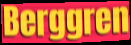
Berggren